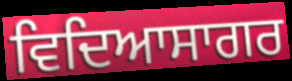
ਵਿਦਿਆਸਾਗਰ